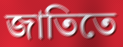
জাতিতে